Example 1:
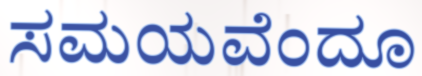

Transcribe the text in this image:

ಸಮಯವೆಂದೂ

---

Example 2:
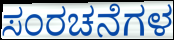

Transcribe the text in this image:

ಸಂರಚನೆಗಳ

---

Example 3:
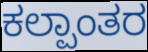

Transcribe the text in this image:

ಕಲ್ಪಾಂತರ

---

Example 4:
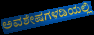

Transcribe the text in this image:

ಅವಶೇಷಗಳಡಿಯಲ್ಲಿ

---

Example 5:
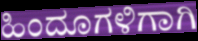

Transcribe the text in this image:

ಹಿಂದೂಗಳಿಗಾಗಿ